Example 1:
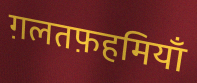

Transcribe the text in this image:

ग़लतफ़हमियाँ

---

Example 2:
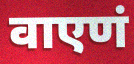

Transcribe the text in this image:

वाएणं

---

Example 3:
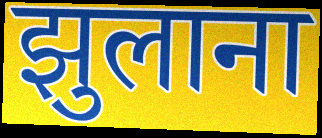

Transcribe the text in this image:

झुलाना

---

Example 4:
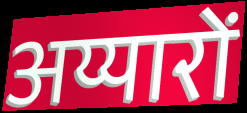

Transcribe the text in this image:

अय्यारों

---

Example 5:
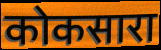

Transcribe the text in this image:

कोकसारा